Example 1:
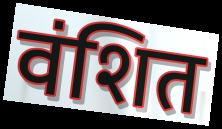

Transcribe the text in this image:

वंशित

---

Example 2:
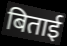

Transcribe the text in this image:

बिताई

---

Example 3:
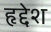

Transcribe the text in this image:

हृद्देश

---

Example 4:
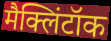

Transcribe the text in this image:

मैक्लिंटॉक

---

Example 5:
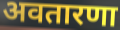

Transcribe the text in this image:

अवतारणा